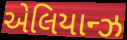
એલિયાન્ઝ